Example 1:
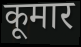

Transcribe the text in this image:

कूमार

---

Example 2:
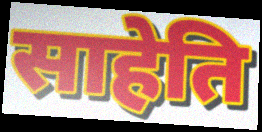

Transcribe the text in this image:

साहेति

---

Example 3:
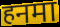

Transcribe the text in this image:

हनमा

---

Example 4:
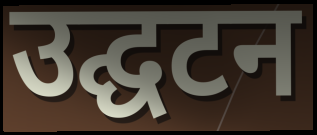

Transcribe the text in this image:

उद्घटन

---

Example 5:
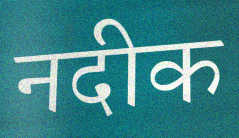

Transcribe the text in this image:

नदीक